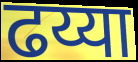
ढय्या